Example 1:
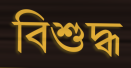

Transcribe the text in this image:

বিশুদ্ধ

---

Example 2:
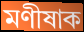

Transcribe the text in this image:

মণীষাক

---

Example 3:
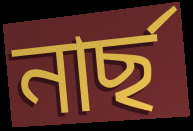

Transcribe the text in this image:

নাৰ্ছ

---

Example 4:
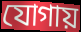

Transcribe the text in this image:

যোগায়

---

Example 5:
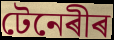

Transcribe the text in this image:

টেনেৰীৰ